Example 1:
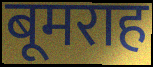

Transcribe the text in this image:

बूमराह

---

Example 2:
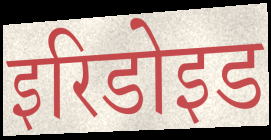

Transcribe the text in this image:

इरिडोइड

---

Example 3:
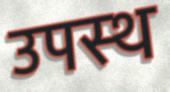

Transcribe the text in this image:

उपस्थ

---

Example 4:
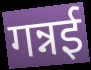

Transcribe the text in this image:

गन्नई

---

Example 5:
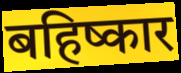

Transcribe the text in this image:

बहिष्‍कार